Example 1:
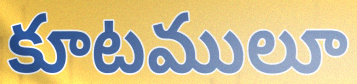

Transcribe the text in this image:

కూటములూ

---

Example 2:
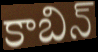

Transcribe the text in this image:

కాబిన్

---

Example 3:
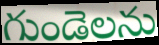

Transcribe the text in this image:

గుండెలను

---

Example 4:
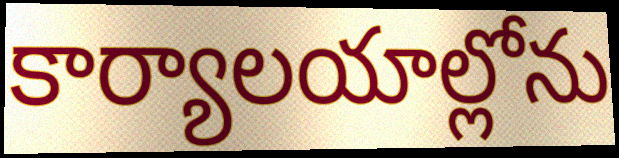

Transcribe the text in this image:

కార్యాలయాల్లోను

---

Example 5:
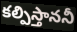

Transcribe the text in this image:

కల్పిస్తాననీ